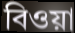
বিওয়া